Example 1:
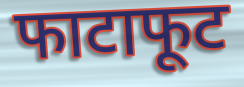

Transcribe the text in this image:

फाटाफूट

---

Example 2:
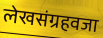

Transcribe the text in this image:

लेखसंग्रहवजा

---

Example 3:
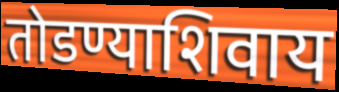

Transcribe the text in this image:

तोडण्याशिवाय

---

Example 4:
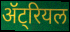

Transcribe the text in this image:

ॲट्रियल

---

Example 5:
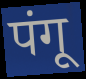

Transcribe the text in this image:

पंगू